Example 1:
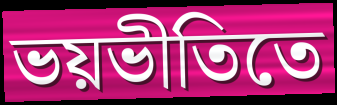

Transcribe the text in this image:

ভয়ভীতিতে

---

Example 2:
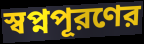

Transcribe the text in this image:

স্বপ্নপূরণের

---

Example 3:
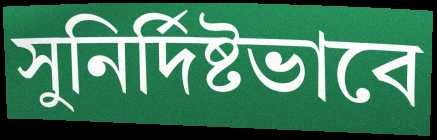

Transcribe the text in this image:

সুনির্দিষ্টভাবে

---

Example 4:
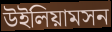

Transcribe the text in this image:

উইলিয়ামসন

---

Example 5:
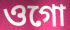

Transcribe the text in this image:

ওগো